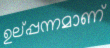
ഉല്പ്പന്നമാണ്